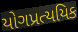
યોગપ્રત્યયિક